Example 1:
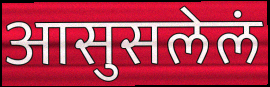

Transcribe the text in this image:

आसुसलेलं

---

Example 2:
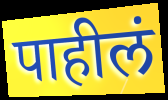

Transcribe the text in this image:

पाहीलं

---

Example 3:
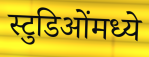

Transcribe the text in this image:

स्टुडिओंमध्ये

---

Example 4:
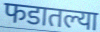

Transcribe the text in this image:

फडातल्या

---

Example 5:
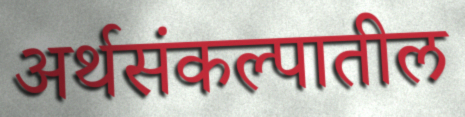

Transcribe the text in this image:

अर्थसंकल्पातील